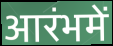
आरंभमें